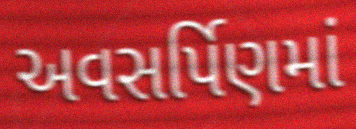
અવસર્પિણમાં